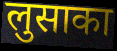
लुसाका